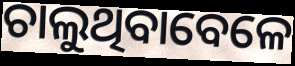
ଚାଲୁଥିବାବେଳେ